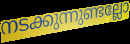
നടക്കുന്നുണ്ടല്ലോ